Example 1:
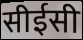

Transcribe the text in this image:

सीईसी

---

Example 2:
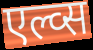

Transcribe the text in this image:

एल्व्स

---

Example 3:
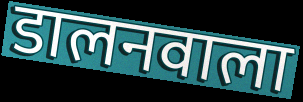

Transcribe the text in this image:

डालनवाला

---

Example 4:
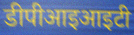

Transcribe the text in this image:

डीपीआइआइटी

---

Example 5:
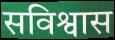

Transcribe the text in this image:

सविश्वास